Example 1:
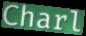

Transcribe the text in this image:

Charl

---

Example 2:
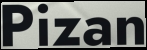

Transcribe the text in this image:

Pizan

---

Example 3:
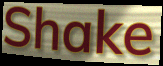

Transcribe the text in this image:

Shake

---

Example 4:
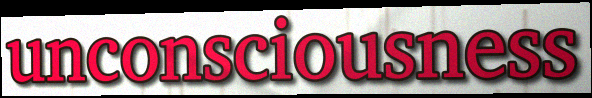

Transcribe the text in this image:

unconsciousness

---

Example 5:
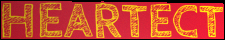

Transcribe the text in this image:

HEARTECT